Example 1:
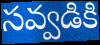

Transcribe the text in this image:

సవ్వడికి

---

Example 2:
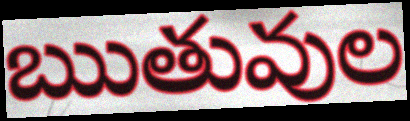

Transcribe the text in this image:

ఋతువుల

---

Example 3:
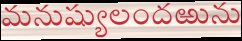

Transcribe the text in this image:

మనుష్యులందఱును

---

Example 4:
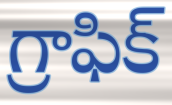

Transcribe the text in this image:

గ్రాఫిక్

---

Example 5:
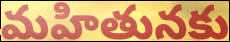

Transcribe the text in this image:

మహితునకు